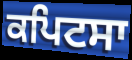
ਕਪਿਟਸਾ